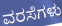
ವರಸೆಗಳು